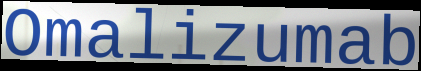
Omalizumab